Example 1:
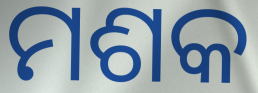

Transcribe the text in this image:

ମଶକ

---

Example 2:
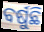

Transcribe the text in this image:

ବର୍ଷୁଛି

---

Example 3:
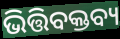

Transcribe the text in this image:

ଭିତ୍ତିବକ୍ତବ୍ୟ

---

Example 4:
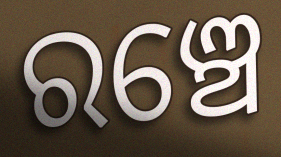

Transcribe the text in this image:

ରଞ୍ଚେ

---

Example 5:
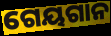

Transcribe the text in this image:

ଗେୟଗାନ